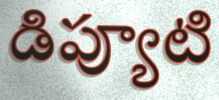
డిప్యూటి